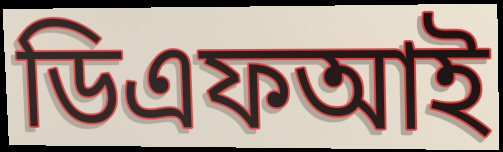
ডিএফআই